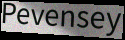
Pevensey